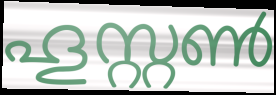
ഹൂസ്റ്റൺ